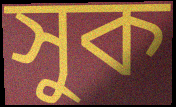
সুক